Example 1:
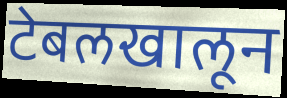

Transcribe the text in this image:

टेबलखालून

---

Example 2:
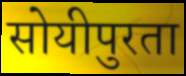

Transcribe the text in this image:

सोयीपुरता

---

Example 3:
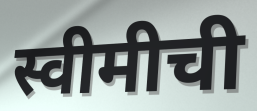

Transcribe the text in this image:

स्वीमीची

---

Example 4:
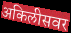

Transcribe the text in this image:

अकिलीसवर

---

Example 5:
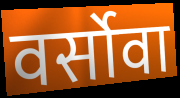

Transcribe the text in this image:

वर्सोवा